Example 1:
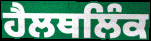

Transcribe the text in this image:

ਹੈਲਥਲਿੰਕ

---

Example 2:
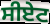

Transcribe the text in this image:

ਸੀਏਟ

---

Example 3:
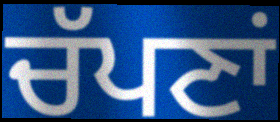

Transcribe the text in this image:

ਚੱਪਣਾਂ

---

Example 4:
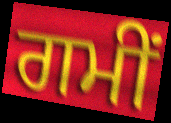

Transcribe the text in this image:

ਗਮੀਂ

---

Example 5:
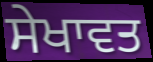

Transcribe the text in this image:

ਸੇਖਾਵਤ